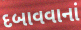
દબાવવાનાં